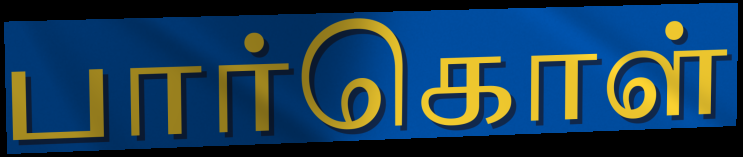
பார்கொள்